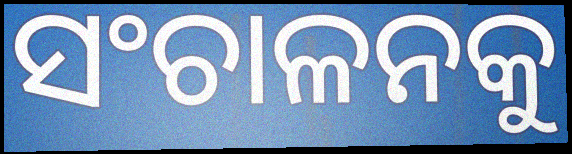
ସଂଚାଳନକୁ